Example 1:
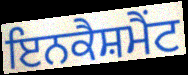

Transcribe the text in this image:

ਇਨਕੈਸ਼ਮੈਂਟ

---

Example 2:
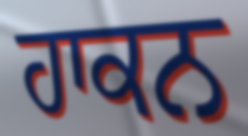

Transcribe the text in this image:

ਹਾਕਨ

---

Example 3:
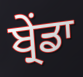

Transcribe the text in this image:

ਬ੍ਰੇਂਡਾ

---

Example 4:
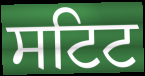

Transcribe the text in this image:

ਸਟਿਟ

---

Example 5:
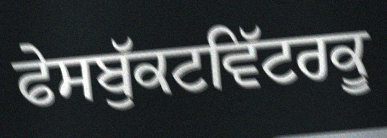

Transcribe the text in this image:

ਫੇਸਬੁੱਕਟਵਿੱਟਰਕੂ